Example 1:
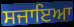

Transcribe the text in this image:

ਸਜਾਇਆ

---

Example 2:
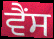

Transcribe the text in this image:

ਵੈਂਸ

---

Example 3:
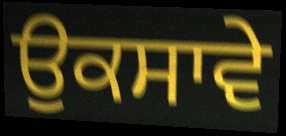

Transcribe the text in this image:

ਉਕਸਾਵੇ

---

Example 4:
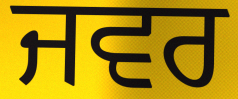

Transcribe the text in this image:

ਜਵਰ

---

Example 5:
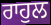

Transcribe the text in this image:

ਰਾਹੁਲ